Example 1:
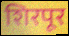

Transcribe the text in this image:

शिरपूर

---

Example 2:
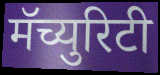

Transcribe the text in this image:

मॅच्युरिटी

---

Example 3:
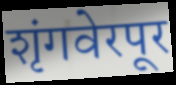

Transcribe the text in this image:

शृंगवेरपूर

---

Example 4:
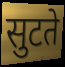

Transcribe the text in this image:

सुटते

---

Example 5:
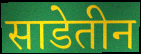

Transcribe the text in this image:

साडेतीन